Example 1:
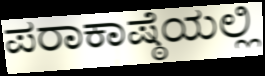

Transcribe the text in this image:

ಪರಾಕಾಷ್ಠೆಯಲ್ಲಿ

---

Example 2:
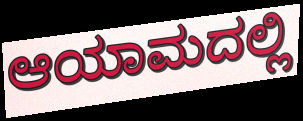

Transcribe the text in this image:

ಆಯಾಮದಲ್ಲಿ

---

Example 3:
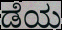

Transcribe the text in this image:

ಡೆಯ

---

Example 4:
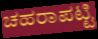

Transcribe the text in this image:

ಚಹರಾಪಟ್ಟಿ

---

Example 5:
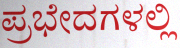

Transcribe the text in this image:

ಪ್ರಭೇದಗಳಲ್ಲಿ